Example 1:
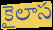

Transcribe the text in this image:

కైలాస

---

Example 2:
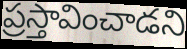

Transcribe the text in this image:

ప్రస్తావించాడని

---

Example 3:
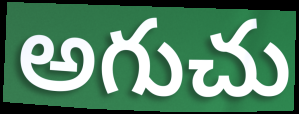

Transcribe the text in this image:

అగుచు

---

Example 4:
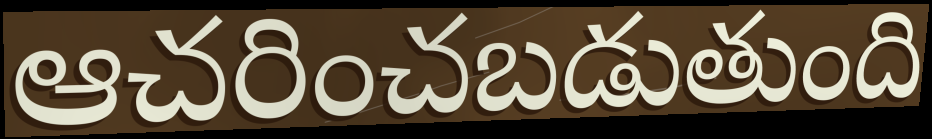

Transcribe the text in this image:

ఆచరించబడుతుంది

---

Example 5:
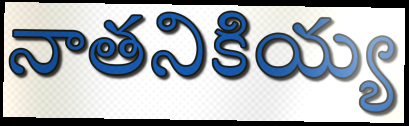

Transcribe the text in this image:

నాతనికియ్య